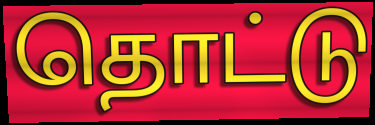
தொட்டு